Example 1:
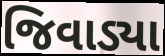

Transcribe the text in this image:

જિવાડ્યા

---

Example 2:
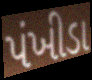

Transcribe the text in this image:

પંખીડા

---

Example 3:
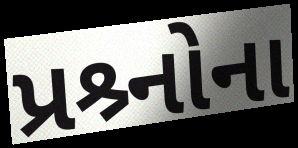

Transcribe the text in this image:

પ્રશ્ર્નોના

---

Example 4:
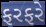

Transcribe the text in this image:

ફરફરે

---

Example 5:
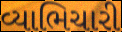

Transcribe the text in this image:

વ્યાભિચારી